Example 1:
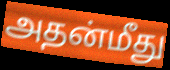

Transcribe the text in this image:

அதன்மீது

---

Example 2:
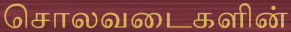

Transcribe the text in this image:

சொலவடைகளின்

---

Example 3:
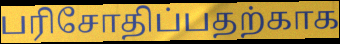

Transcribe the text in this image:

பரிசோதிப்பதற்காக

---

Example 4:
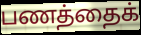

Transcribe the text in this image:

பணத்தைக்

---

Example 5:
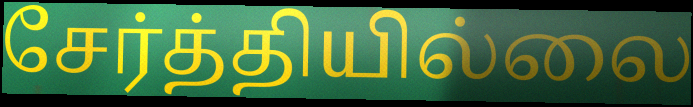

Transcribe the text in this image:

சேர்த்தியில்லை